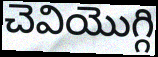
చెవియొగ్గి